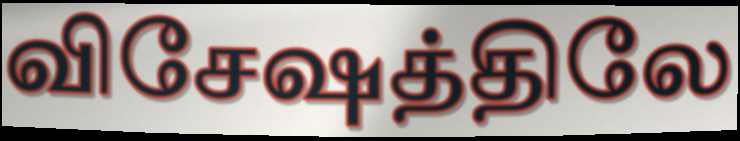
விசேஷத்திலே